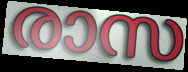
രാസ